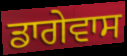
ਡਾਗੇਵਾਸ